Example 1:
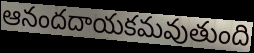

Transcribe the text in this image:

ఆనందదాయకమవుతుంది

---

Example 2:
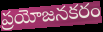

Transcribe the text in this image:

ప్రయోజనకరం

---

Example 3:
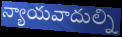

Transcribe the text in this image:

న్యాయవాదుల్ని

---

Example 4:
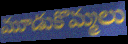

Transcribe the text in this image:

మూడుకొమ్మలు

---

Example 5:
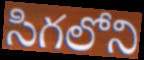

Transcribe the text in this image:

సిగలోని